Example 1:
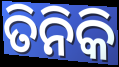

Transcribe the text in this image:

ତିନିକି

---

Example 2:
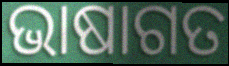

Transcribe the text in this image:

ଭାଷାଗତ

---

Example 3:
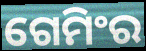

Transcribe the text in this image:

ଗେମିଂର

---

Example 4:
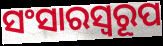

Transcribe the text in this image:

ସଂସାରସ୍ବରୂପ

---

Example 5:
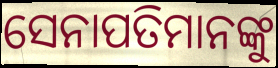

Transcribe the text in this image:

ସେନାପତିମାନଙ୍କୁ